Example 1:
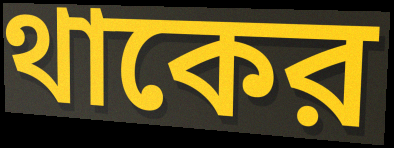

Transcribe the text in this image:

থাকের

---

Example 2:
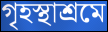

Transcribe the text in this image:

গৃহস্থাশ্রমে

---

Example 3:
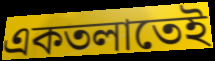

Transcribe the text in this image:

একতলাতেই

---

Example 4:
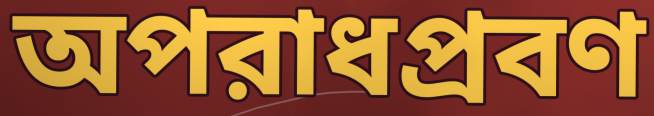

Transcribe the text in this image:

অপরাধপ্রবণ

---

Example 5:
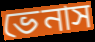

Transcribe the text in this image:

ভেনাস